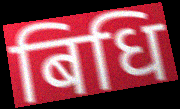
बिधि